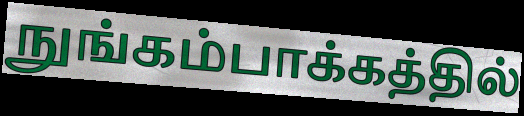
நுங்கம்பாக்கத்தில்